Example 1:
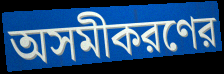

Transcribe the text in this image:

অসমীকরণের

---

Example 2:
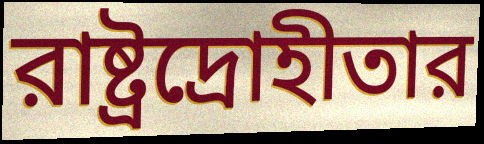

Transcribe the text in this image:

রাষ্ট্রদ্রোহীতার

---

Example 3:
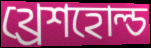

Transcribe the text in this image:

থ্রেশহোল্ড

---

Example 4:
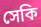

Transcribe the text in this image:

সেকি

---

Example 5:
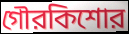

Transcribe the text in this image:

গৌরকিশোর